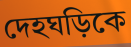
দেহঘড়িকে